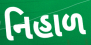
નિહાળ